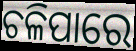
ଚଳିପାରେ